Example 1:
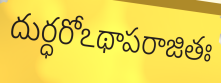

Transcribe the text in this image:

దుర్ధరోఽథాపరాజితః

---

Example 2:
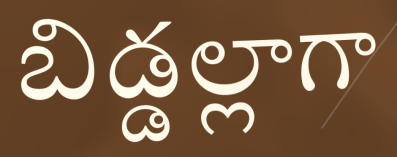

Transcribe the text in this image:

బిడ్డల్లాగా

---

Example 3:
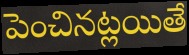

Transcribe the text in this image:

పెంచినట్లయితే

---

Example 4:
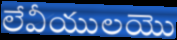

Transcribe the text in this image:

లేవీయులయొ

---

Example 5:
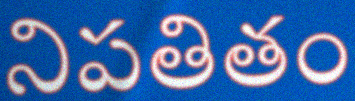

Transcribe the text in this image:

నిపతితం